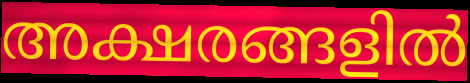
അക്ഷരങ്ങളിൽ